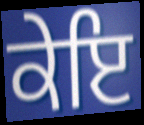
ਕੇਇ